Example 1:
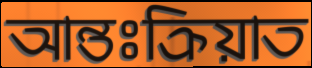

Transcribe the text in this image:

আন্তঃক্ৰিয়াত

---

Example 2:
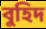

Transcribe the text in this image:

বুহিদ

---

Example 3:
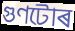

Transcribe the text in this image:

গুণটোৰ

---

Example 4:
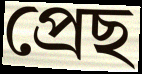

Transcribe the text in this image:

প্ৰেছ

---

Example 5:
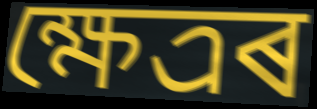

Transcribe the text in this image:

ক্ষেত্ৰৰ